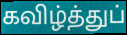
கவிழ்த்துப்